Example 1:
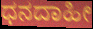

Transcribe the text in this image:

ಧನದಾಹೀ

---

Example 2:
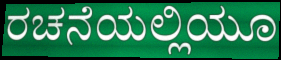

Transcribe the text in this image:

ರಚನೆಯಲ್ಲಿಯೂ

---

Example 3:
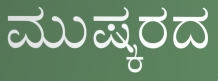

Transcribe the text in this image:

ಮುಷ್ಕರದ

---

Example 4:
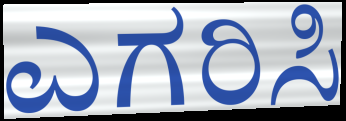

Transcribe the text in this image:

ಎಗರಿಸಿ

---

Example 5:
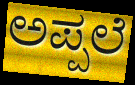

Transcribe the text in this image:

ಅಪ್ಪಲೆ